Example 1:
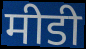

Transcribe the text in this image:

मीडी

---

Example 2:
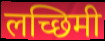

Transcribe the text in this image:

लच्छिमी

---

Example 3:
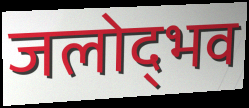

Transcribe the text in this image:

जलोद्भव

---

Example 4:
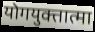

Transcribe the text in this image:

योगयुक्तात्मा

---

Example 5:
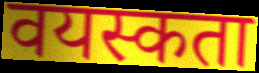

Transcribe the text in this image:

वयस्कता